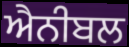
ਐਨੀਬਲ